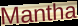
Mantha